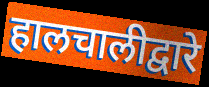
हालचालीद्वारे